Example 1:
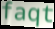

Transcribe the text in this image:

faqt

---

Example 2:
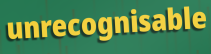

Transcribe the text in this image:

unrecognisable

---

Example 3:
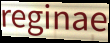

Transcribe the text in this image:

reginae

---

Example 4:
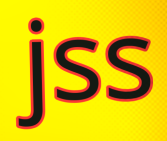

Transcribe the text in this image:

jss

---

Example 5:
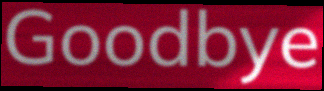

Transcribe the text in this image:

Goodbye